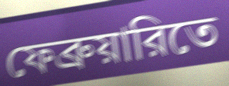
ফেব্রুয়ারিতে